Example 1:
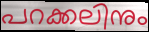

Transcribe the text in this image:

പറക്കലിനും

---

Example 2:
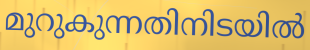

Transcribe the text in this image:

മുറുകുന്നതിനിടയിൽ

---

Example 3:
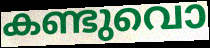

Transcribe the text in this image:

കണ്ടുവൊ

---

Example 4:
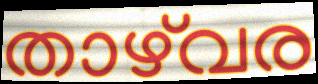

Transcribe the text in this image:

താഴ്‌വര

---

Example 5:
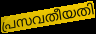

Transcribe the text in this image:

പ്രസവതീയതി